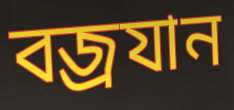
বজ্ৰযান